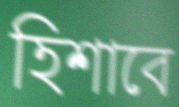
হিশাবে